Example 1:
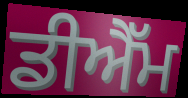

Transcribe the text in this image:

ਡੀਐੱਮ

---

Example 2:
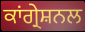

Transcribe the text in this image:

ਕਾਂਗ੍ਰੇਸ਼ਨਲ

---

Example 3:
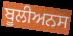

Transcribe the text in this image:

ਬੂਲੀਅਨਸ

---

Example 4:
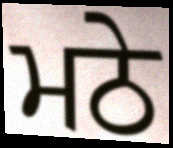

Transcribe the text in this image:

ਮਠੇ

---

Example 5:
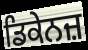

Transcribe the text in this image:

ਡਿਕੇਨਜ਼